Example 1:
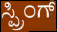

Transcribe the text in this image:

ಸ್ಪ್ರಿಂಗ್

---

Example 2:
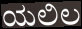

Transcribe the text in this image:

ಯಲಿಲ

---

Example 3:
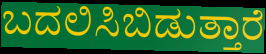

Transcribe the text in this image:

ಬದಲಿಸಿಬಿಡುತ್ತಾರೆ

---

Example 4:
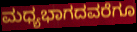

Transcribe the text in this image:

ಮಧ್ಯಭಾಗದವರೆಗೂ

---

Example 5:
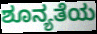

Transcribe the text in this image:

ಶೂನ್ಯತೆಯ